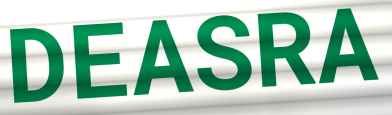
DEASRA